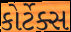
કોર્ટેક્સ